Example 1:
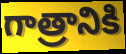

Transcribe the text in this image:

గాత్రానికి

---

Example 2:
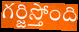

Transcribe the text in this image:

గర్జిస్తోంది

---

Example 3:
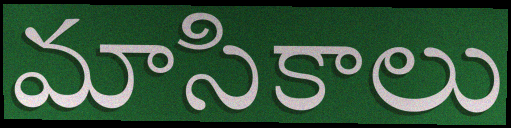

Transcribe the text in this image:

మాసికాలు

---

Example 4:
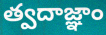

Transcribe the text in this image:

త్వదాజ్ఞాం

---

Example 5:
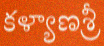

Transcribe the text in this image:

కళ్యాణశ్రీ